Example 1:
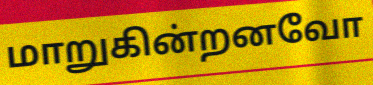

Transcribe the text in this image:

மாறுகின்றனவோ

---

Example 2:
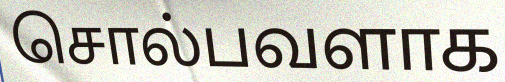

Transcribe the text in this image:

சொல்பவளாக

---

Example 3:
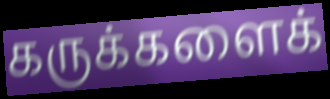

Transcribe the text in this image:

கருக்களைக்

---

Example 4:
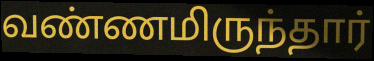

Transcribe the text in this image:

வண்ணமிருந்தார்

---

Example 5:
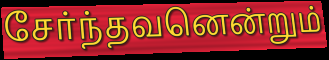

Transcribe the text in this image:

சேர்ந்தவனென்றும்